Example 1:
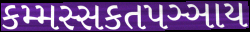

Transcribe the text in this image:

કમ્મસ્સકતપઞ્ઞાય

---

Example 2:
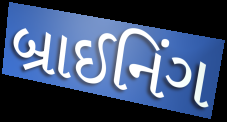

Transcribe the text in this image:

બ્રાઈનિંગ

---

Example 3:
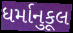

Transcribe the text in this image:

ધર્માનુકૂલ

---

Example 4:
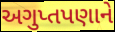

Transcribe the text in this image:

અગુપ્તપણાને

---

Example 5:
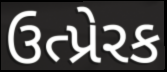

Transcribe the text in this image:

ઉત્પ્રેરક